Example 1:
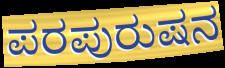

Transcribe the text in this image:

ಪರಪುರುಷನ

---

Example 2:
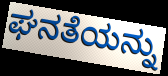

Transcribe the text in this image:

ಘನತೆಯನ್ನು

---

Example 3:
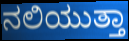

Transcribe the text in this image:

ನಲಿಯುತ್ತಾ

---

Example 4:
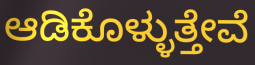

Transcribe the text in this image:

ಆಡಿಕೊಳ್ಳುತ್ತೇವೆ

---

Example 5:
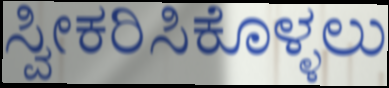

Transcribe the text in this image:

ಸ್ವೀಕರಿಸಿಕೊಳ್ಳಲು